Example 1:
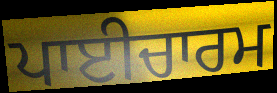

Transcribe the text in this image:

ਪਾਈਚਾਰਮ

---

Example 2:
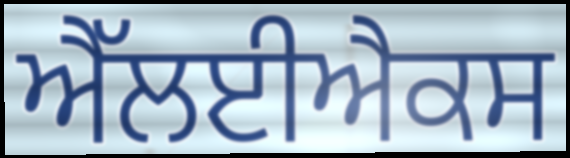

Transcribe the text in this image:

ਐੱਲਈਐਕਸ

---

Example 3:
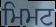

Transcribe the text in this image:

ਮਿਮਟ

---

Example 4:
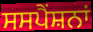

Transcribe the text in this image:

ਸਸਪੈਂਸ਼ਨਾਂ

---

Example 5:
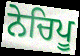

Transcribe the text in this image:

ਨੇਚਿਪੂ